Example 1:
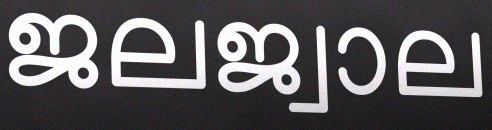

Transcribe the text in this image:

ജലജ്വാല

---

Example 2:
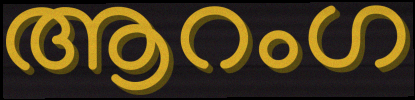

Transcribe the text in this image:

ആറംഗ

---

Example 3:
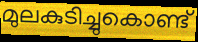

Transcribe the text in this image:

മുലകുടിച്ചുകൊണ്ട്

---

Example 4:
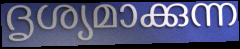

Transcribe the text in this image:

ദൃശ്യമാക്കുന്ന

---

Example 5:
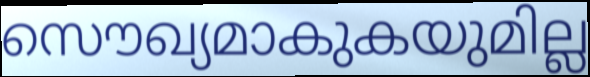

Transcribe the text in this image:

സൌഖ്യമാകുകയുമില്ല